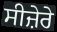
ਸੀਜ਼ੇਰੇ